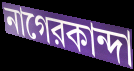
নাগেরকান্দা